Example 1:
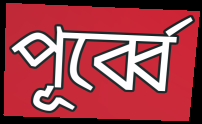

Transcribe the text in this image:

পূৰ্ব্বে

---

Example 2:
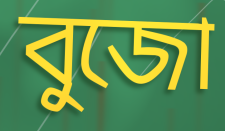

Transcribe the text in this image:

বুজো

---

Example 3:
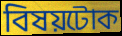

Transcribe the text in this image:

বিষয়টোক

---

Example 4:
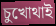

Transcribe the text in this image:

চুখোথাই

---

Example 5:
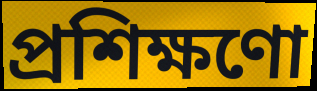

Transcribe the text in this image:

প্ৰশিক্ষণো